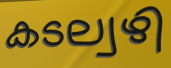
കടല്വഴി